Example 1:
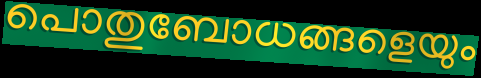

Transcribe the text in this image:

പൊതുബോധങ്ങളെയും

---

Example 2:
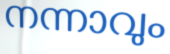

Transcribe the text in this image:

നന്നാവും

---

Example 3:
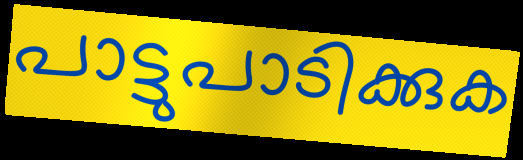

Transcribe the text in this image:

പാട്ടുപാടിക്കുക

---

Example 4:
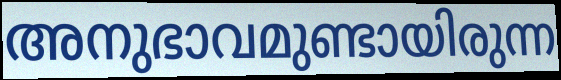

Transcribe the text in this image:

അനുഭാവമുണ്ടായിരുന്ന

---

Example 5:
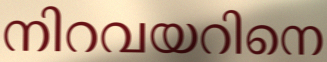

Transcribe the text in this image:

നിറവയറിനെ